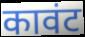
कावंट